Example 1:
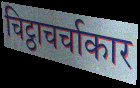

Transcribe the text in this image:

चिट्ठाचर्चाकार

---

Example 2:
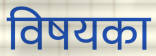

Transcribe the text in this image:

विषयका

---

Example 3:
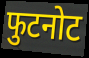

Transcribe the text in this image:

फुटनोट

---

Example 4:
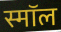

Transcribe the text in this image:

स्मॉल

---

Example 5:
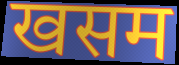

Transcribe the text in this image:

खसम